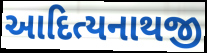
આદિત્યનાથજી